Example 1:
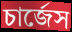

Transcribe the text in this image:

চার্জেস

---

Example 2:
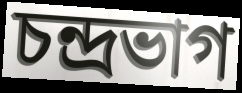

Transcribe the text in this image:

চন্দ্রভাগ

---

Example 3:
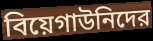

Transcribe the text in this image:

বিয়েগাউনিদের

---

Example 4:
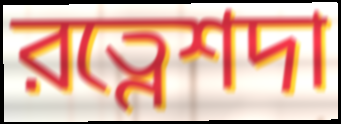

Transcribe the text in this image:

রত্নেশদা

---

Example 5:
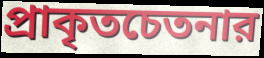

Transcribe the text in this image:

প্রাকৃতচেতনার